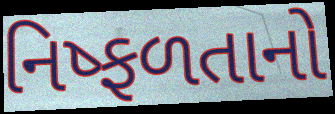
નિષ્ફળતાનો